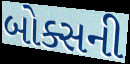
બોક્સની